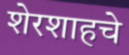
शेरशाहचे